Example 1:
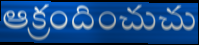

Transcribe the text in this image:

ఆక్రందించుచు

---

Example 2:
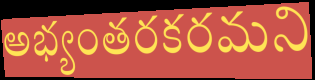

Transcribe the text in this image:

అభ్యంతరకరమని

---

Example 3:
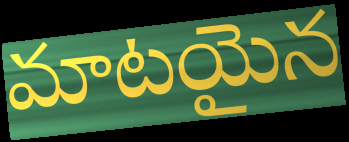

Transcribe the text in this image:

మాటయైన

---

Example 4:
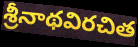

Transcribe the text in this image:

శ్రీనాథవిరచిత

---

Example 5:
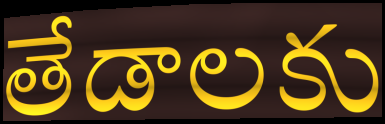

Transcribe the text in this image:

తేడాలకు